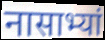
नासाभ्यां